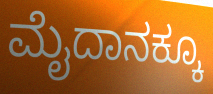
ಮೈದಾನಕ್ಕೂ